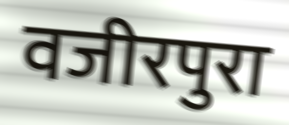
वजीरपुरा